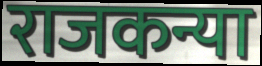
राजकन्या